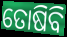
ତୋଷିବି